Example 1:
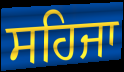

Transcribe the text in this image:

ਸਹਿਜਾ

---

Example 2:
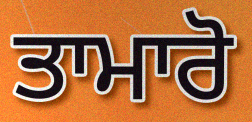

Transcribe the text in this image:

ਤਾਮਾਰੋ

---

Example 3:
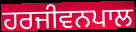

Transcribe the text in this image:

ਹਰਜੀਵਨਪਾਲ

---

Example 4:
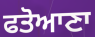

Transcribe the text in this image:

ਫਤੋਆਣਾ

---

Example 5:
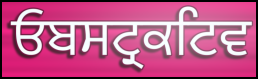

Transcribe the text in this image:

ਓਬਸਟ੍ਰਕਟਿਵ